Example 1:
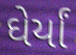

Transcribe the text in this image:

ઘેર્યાં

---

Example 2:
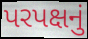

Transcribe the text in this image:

પરપક્ષનું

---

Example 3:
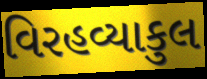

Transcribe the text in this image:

વિરહવ્યાકુલ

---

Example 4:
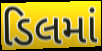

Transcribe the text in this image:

ડિલમાં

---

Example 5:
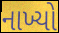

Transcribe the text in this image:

નાખ્યો